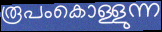
രൂപംകൊള്ളുന്ന